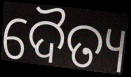
ଦୈତ୍ୟ